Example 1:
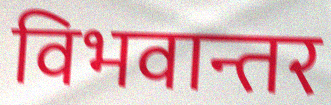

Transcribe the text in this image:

विभवान्तर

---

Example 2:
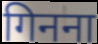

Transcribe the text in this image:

गिनना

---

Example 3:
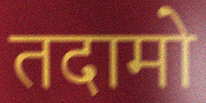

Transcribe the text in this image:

तदामो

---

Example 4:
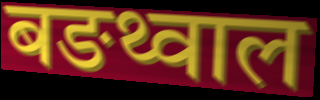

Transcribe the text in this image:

बङथ्वाल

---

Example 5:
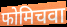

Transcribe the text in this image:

फोमिचवा